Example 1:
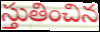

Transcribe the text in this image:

స్తుతించిన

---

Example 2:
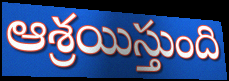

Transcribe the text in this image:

ఆశ్రయిస్తుంది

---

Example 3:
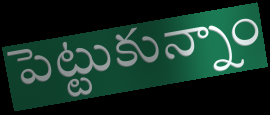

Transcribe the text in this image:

పెట్టుకున్నాం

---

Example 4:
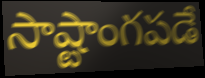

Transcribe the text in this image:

సాష్టాంగపడే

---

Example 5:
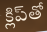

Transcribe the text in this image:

క్లిప్‌తో